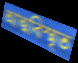
আত্মবিস্মৃত